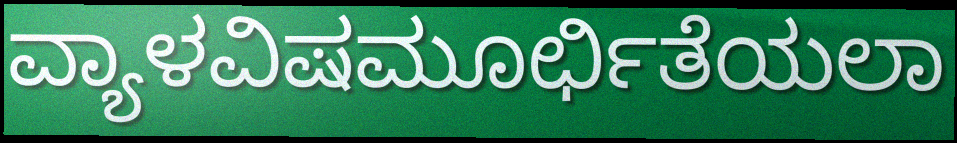
ವ್ಯಾಳವಿಷಮೂರ್ಛಿತೆಯಲಾ